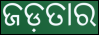
ଜଡ଼ତାର